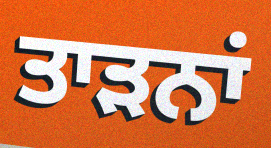
ਤਾੜਨਾਂ